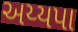
અય્યપા